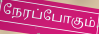
நேரப்போகும்